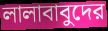
লালাবাবুদের